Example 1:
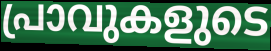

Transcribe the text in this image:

പ്രാവുകളുടെ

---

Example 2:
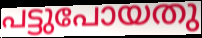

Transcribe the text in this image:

പട്ടുപോയതു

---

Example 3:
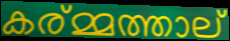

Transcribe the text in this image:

കര്മ്മത്താല്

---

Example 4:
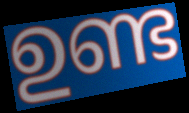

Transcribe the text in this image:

ഉണ്ട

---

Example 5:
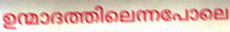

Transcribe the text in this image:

ഉന്മാദത്തിലെന്നപോലെ